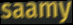
saamy